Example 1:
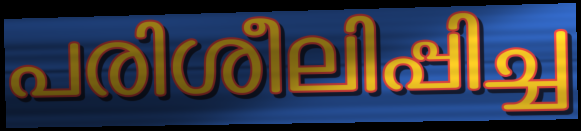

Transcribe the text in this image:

പരിശീലിപ്പിച്ച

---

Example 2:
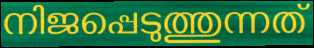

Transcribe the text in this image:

നിജപ്പെടുത്തുന്നത്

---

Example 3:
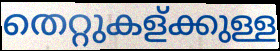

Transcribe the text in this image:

തെറ്റുകള്ക്കുള്ള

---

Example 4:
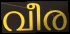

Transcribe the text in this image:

വീര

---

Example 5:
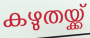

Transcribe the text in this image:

കഴുതയ്ക്ക്